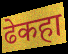
ढेकहा